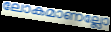
ലോകമാണല്ലോ